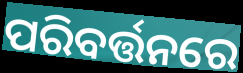
ପରିବର୍ତ୍ତନରେ